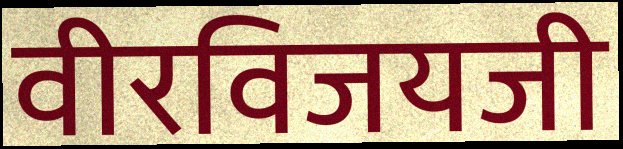
वीरविजयजी